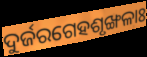
ଦୁର୍ଜରଗେହଶୃଙ୍ଖଳାଃ